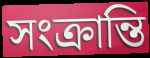
সংক্ৰান্তি